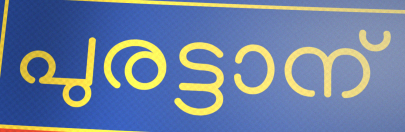
പുരട്ടാന്